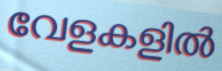
വേളകളിൽ